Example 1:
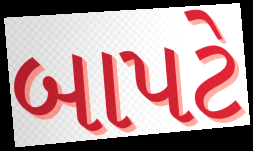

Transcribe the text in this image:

બાપટે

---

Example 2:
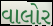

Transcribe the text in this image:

વાલોર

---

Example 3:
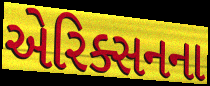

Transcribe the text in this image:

એરિક્સનના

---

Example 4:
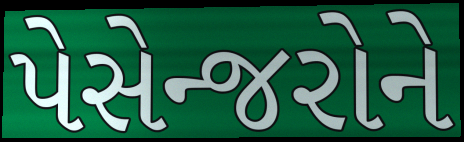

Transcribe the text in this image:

પેસેન્જરોને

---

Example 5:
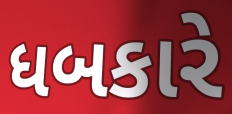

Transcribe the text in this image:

ધબકારે